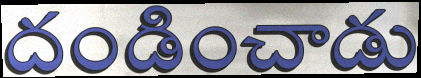
దండించాడు